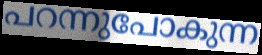
പറന്നുപോകുന്ന